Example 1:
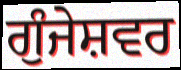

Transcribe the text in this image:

ਗੁੰਜੇਸ਼ਵਰ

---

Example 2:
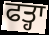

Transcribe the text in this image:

ਫਤ੍ਹਾ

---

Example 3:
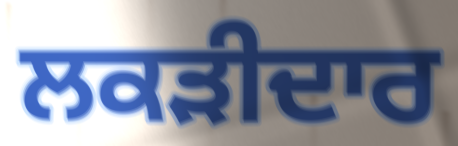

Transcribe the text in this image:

ਲਕੜੀਦਾਰ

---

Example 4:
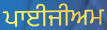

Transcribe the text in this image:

ਪਾਈਜੀਅਮ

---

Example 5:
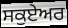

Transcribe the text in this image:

ਸਕੁਏਅਰ